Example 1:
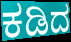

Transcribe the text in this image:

ಕಡಿದ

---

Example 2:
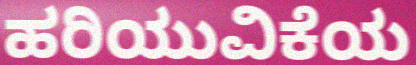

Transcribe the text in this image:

ಹರಿಯುವಿಕೆಯ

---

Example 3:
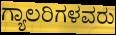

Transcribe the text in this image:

ಗ್ಯಾಲರಿಗಳವರು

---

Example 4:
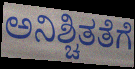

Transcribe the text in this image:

ಅನಿಶ್ಚಿತತೆಗೆ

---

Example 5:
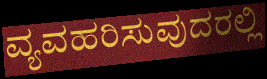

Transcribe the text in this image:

ವ್ಯವಹರಿಸುವುದರಲ್ಲಿ